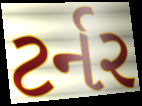
ટર્નર